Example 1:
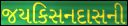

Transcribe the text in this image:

જયકિસનદાસની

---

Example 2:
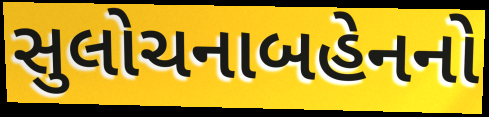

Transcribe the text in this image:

સુલોચનાબહેનનો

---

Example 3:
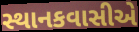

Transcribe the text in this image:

સ્થાનકવાસીએ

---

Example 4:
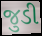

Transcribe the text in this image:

જુડી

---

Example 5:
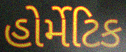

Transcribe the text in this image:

હોર્મેટિક